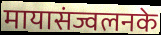
मायासंज्वलनके